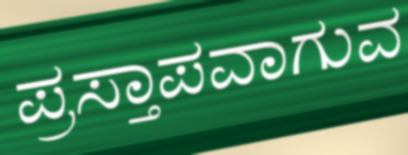
ಪ್ರಸ್ತಾಪವಾಗುವ